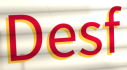
Desf